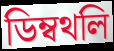
ডিম্বথলি